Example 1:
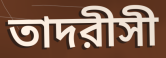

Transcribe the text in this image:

তাদরীসী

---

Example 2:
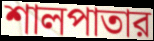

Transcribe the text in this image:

শালপাতার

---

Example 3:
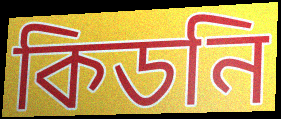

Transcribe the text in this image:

কিডনি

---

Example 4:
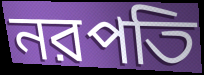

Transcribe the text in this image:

নরপতি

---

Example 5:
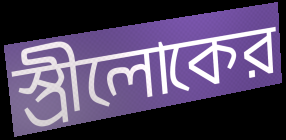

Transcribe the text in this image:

স্ত্রীলোকের